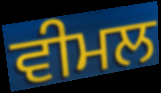
ਵੀਮਲ